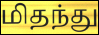
மிதந்து